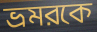
ভ্রমরকে